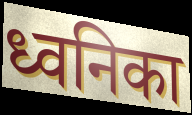
ध्वनिका